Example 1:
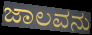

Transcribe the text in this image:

ಜಾಲವನು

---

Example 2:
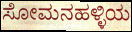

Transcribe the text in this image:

ಸೋಮನಹಳ್ಳಿಯ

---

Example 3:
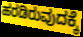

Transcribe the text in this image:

ಹರಡಿರುವುದಕ್ಕೆ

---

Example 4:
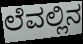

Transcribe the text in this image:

ಲೆವಲ್ಲಿನ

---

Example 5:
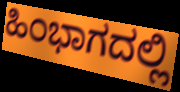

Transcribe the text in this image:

ಹಿಂಭಾಗದಲ್ಲಿ